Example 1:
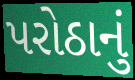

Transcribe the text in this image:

પરોઠાનું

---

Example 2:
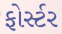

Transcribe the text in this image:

ફોર્સ્ટર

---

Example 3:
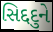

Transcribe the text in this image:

સિદ્દદુને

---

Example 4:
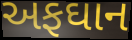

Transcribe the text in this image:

અફઘાન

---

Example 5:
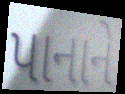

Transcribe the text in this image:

પાનાને